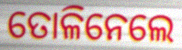
ତୋଳିନେଲେ